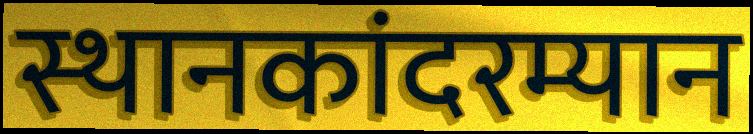
स्थानकांदरम्यान